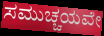
ಸಮುಚ್ಚಯವೇ